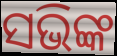
ସଭିଙ୍କ